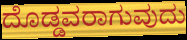
ದೊಡ್ಡವರಾಗುವುದು